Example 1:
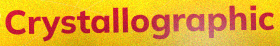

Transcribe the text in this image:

Crystallographic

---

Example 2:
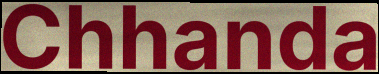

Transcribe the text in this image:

Chhanda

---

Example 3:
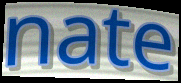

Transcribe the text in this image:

nate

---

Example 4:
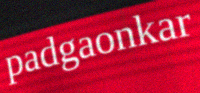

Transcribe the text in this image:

padgaonkar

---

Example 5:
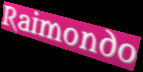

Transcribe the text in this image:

Raimondo